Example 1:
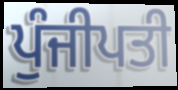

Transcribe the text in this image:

ਪੁੰਜੀਪਤੀ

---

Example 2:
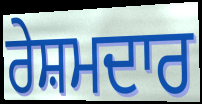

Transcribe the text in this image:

ਰੇਸ਼ਮਦਾਰ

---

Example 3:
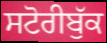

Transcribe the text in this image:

ਸਟੋਰੀਬੁੱਕ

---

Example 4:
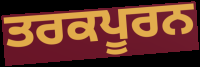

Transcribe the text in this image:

ਤਰਕਪੂਰਨ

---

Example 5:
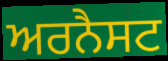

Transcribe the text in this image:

ਅਰਨੈਸਟ